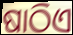
ଷାଠିଏ